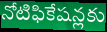
నోటిఫికేషన్లకు